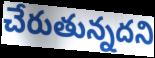
చేరుతున్నదని